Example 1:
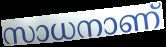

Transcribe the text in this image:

സാധനാണ്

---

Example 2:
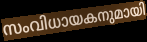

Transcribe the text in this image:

സംവിധായകനുമായി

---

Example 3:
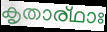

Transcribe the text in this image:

കൃതാര്ഥാഃ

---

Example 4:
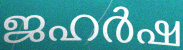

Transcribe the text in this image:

ജഹർഷ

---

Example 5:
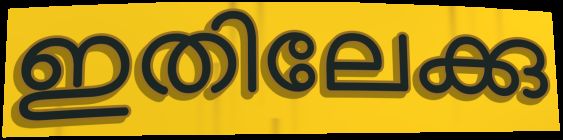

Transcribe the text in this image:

ഇതിലേക്കു